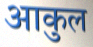
आकुल